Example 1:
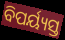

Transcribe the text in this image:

ବିପର୍ୟ୍ୟସ୍ତ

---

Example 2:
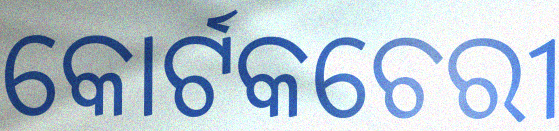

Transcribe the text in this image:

କୋର୍ଟକଚେରୀ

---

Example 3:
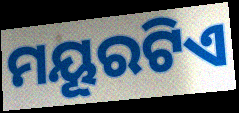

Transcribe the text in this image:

ମୟୂରଟିଏ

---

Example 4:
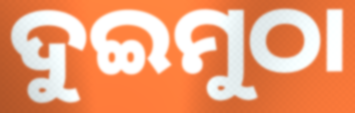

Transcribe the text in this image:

ଦୁଇମୁଠା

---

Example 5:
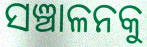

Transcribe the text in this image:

ସଞ୍ଚାଳନକୁ